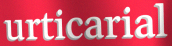
urticarial